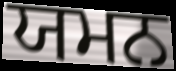
ਯਮਨ